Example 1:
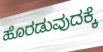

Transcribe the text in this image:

ಹೊರಡುವುದಕ್ಕೆ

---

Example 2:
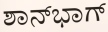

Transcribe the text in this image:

ಶಾನ್‍ಭಾಗ್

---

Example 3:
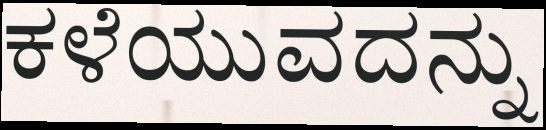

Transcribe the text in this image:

ಕಳೆಯುವದನ್ನು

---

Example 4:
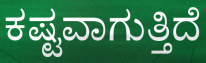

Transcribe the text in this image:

ಕಷ್ಟವಾಗುತ್ತಿದೆ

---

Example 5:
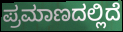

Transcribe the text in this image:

ಪ್ರಮಾಣದಲ್ಲಿದೆ